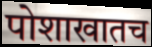
पोशाखातच